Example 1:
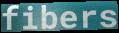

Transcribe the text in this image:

fibers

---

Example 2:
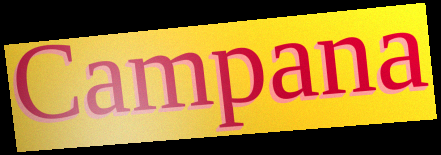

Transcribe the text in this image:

Campana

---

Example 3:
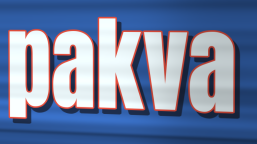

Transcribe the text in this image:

pakva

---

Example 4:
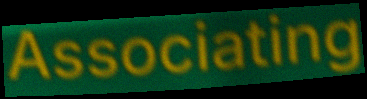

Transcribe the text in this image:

Associating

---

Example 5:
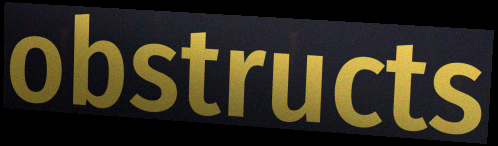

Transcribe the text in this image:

obstructs